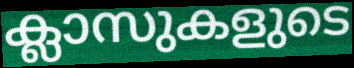
ക്ലാസുകളുടെ